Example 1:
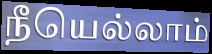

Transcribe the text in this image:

நீயெல்லாம்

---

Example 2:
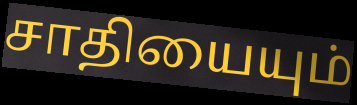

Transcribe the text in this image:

சாதியையும்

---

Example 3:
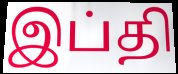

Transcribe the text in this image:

இப்தி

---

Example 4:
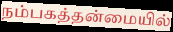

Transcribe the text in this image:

நம்பகத்தன்மையில்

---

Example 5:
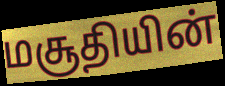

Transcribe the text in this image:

மசூதியின்